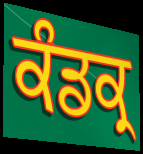
ਕੰਡਕ੍ਰ